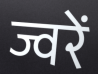
ज्वरें